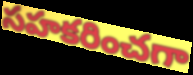
సహకరించగా